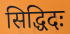
सिद्धिदः